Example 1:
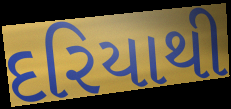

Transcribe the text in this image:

દરિયાથી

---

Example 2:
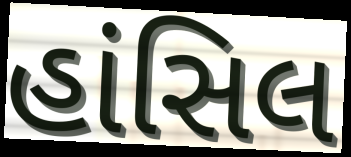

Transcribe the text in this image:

હાંસિલ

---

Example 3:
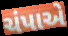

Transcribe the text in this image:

ચંપાએ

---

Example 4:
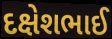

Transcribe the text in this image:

દક્ષેશભાઈ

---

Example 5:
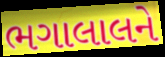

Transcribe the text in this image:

ભગાલાલને